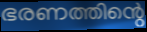
ഭരണത്തിന്റെ